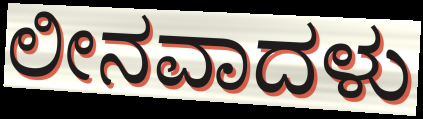
ಲೀನವಾದಳು